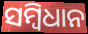
ସମ୍ୱିଧାନ